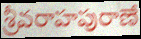
శ్రీవరాహపురాణే